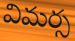
విమర్స